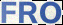
FRO